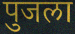
पुजला